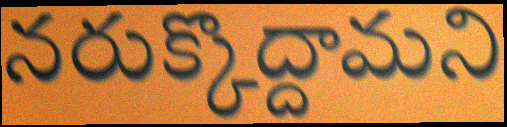
నరుక్కొద్దామని